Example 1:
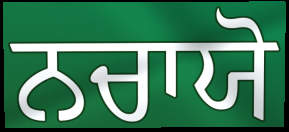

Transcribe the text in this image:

ਨਚਾਯੋ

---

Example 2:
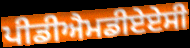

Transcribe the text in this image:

ਪੀਡੀਐਮਡੀਏਏਸੀ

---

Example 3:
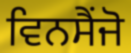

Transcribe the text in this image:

ਵਿਨਸੈਂਜੋ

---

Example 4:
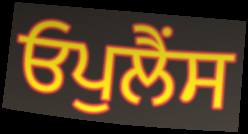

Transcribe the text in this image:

ਓਪੁਲੈਂਸ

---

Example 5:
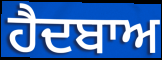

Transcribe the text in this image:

ਹੈਦਬਾਅ